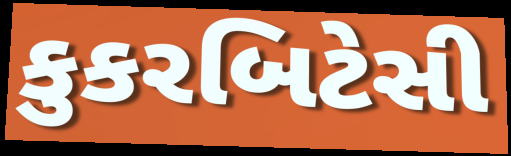
કુકરબિટેસી